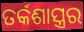
ତର୍କଶାସ୍ତ୍ରର